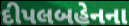
દીપલબહેનના